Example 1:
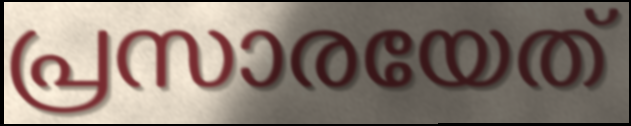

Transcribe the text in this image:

പ്രസാരയേത്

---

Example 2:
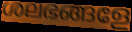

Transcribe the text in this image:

ശലഭങ്ങളേ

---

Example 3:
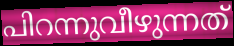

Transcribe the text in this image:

പിറന്നുവീഴുന്നത്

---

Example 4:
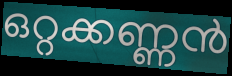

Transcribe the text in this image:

ഒറ്റക്കണ്ണൻ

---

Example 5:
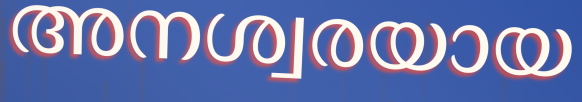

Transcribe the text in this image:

അനശ്വരയായ